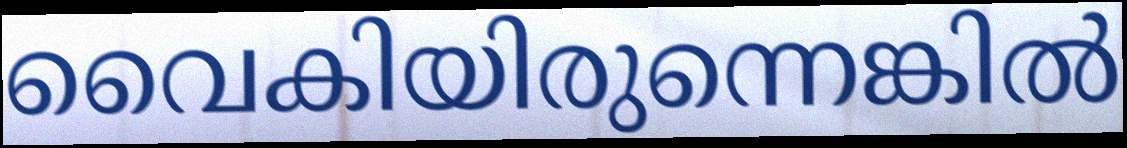
വൈകിയിരുന്നെങ്കിൽ